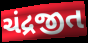
ચંદ્રજીત